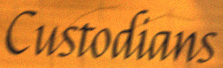
Custodians